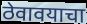
ठेवावयाचा